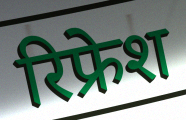
रिफ्रेश